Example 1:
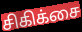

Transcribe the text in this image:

சிகிக்சை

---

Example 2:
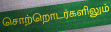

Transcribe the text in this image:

சொற்றொடர்களிலும்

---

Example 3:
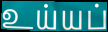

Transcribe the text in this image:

உய்யப்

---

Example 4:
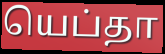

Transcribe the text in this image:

யெப்தா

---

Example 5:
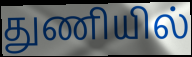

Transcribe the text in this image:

துணியில்